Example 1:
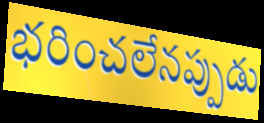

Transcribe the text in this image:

భరించలేనప్పుడు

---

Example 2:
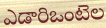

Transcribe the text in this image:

ఎడారిఒంటెల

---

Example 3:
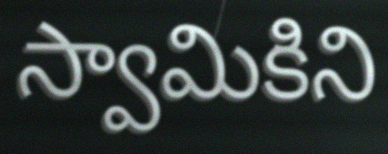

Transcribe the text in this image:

స్వామికిని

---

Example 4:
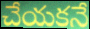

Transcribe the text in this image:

చేయకనే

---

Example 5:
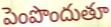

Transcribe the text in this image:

పెంపొందుతూ